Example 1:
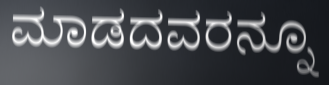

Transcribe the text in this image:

ಮಾಡದವರನ್ನೂ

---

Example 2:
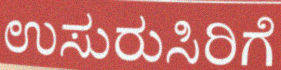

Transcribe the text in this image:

ಉಸುರುಸಿರಿಗೆ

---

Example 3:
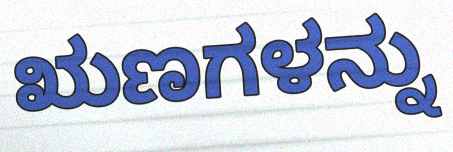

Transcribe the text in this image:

ಋಣಗಳನ್ನು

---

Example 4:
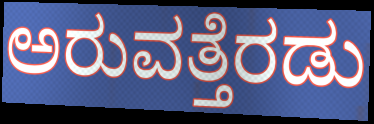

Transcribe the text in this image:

ಅರುವತ್ತೆರಡು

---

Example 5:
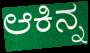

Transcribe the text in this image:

ಆಕಿನ್ನ